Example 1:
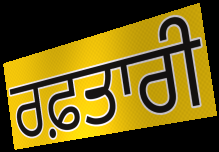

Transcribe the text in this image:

ਰਫ਼ਤਾਰੀ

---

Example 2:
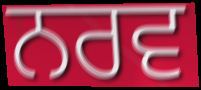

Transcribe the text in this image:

ਨਰਵ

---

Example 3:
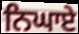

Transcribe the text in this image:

ਨਿਘਾਏ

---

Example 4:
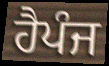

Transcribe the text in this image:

ਹੈਪੰਜ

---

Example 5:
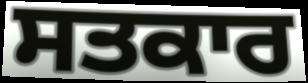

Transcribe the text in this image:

ਸਤਕਾਰ